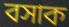
বসাক